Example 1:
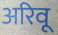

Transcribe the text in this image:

अरिवू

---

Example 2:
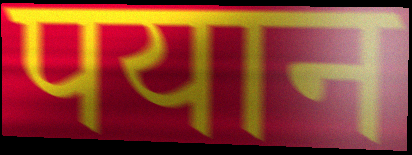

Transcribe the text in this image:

पयान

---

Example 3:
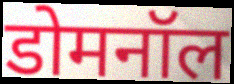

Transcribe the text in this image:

डोमनॉल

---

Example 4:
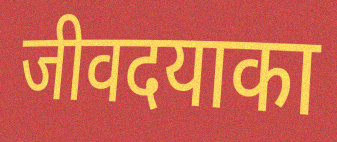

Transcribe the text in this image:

जीवदयाका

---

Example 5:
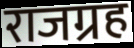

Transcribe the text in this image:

राजग्रह